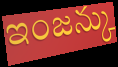
ఇంజన్కు